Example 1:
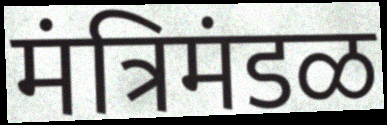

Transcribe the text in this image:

मंत्रिमंडळ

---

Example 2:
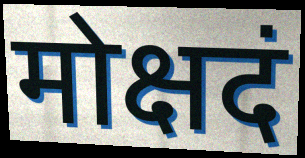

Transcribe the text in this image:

मोक्षदं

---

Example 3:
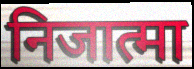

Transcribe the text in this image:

निजात्मा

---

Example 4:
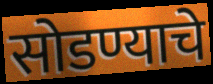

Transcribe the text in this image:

सोडण्याचे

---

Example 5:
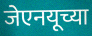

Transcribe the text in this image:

जेएनयूच्या